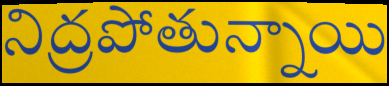
నిద్రపోతున్నాయి